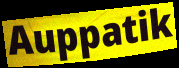
Auppatik